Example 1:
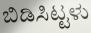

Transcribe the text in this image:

ಬಿಡಿಸಿಟ್ಟಳು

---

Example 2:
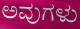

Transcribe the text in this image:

ಅವುಗಳು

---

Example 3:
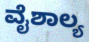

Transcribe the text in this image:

ವೈಶಾಲ್ಯ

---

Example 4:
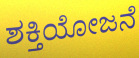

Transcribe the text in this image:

ಶಕ್ತಿಯೋಜನೆ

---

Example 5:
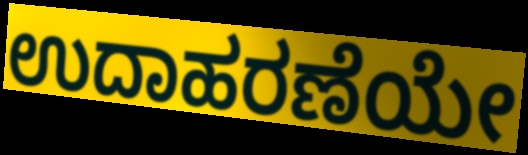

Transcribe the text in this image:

ಉದಾಹರಣೆಯೇ